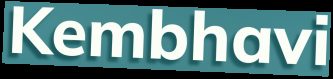
Kembhavi